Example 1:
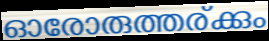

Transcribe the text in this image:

ഓരോരുത്തര്ക്കും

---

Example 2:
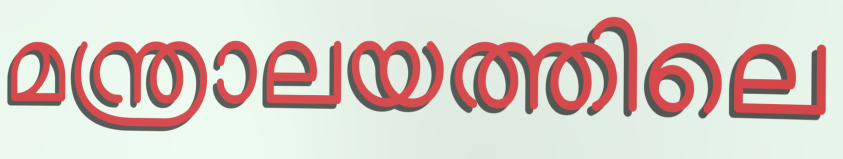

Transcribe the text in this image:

മന്ത്രാലയത്തിലെ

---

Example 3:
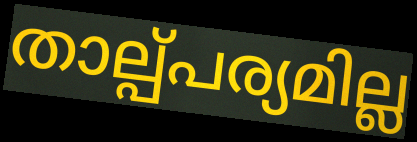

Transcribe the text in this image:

താല്പ്പര്യമില്ല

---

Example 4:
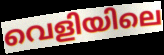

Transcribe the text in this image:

വെളിയിലെ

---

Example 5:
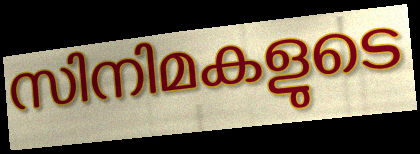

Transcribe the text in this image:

സിനിമകളുടെ